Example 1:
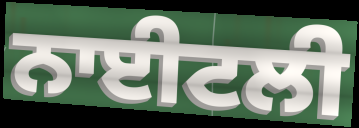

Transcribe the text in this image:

ਨਾਈਟਲੀ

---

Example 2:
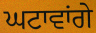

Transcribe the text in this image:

ਘਟਾਵਾਂਗੇ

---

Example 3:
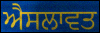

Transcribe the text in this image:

ਐਸਲਾਵਤ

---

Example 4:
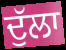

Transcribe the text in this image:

ਦੁੱਲਾ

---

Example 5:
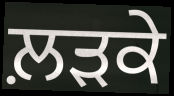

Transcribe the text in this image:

ਲ਼ਡ਼ਕੇ